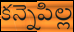
కన్నెపిల్ల